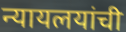
न्यायलयांची